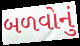
બળવોનું